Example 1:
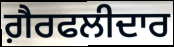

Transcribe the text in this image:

ਗ਼ੈਰਫਲੀਦਾਰ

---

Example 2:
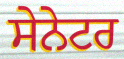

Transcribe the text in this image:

ਸੇਨੇਟਰ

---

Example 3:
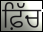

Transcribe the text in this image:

ਫ਼ਿੱਚ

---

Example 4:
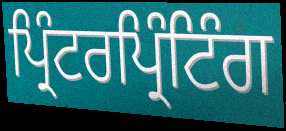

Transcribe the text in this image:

ਪ੍ਰਿੰਟਰਪ੍ਰਿੰਟਿੰਗ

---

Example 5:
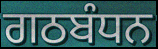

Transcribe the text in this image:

ਗਠਬੰਧਨ